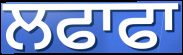
ਲਫਾਫਾ